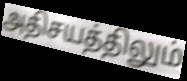
அதிசயத்திலும்